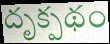
దృక్పథం